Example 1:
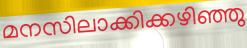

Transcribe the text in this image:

മനസിലാക്കിക്കഴിഞ്ഞു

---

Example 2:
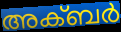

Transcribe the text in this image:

അക്ബർ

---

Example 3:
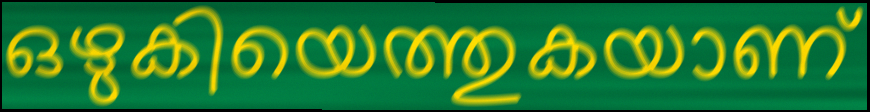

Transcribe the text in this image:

ഒഴുകിയെത്തുകയാണ്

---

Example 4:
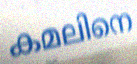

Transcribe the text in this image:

കമലിനെ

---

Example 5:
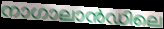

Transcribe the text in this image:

നാഗാലാൻഡിലെ